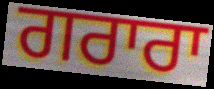
ਗਰਾਰਾ